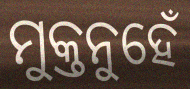
ମୁକ୍ତନୁହେଁ